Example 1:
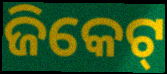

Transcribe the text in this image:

ଜିକେଟ୍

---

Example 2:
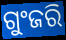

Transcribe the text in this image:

ଗୁଂଜରି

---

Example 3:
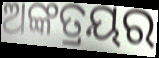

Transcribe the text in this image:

ଅଙ୍କତ୍ରୟର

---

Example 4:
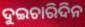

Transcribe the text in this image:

ଦୁଇଚାରିଦିନ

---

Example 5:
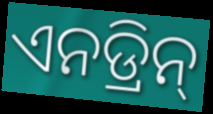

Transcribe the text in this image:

ଏନଡ୍ରିନ୍